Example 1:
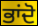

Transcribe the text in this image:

ਭਾਂਦੋ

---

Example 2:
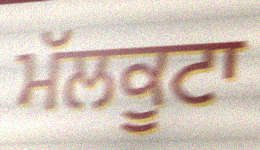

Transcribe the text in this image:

ਮੱਲਕੂਟਾ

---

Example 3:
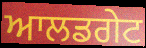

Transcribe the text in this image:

ਆਲਡਗੇਟ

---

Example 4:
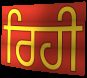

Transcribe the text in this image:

ਰਿਹੀ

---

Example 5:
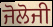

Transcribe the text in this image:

ਜੋਲੋਜੀ